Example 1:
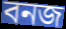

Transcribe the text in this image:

বনজ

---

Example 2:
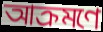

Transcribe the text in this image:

আক্ৰমণে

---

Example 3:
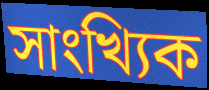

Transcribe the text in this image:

সাংখ্যিক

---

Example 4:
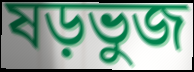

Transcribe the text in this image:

ষড়ভুজ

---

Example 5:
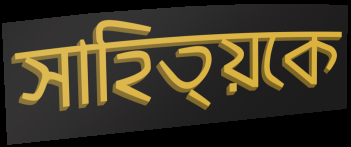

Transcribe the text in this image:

সাহিত্য়কে